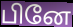
பினே